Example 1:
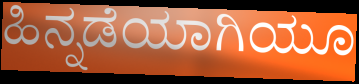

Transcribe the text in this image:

ಹಿನ್ನಡೆಯಾಗಿಯೂ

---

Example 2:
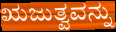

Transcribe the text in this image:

ಋಜುತ್ವವನ್ನು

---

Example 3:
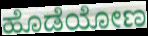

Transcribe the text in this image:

ಹೊಡೆಯೋಣ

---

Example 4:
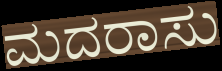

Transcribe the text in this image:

ಮದರಾಸು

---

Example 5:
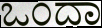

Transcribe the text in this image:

ಒಂದಾ